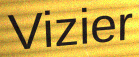
Vizier